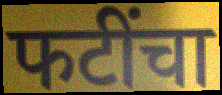
फटींचा